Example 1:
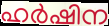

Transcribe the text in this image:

ഹർഷിന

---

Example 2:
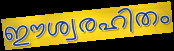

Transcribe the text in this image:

ഈശ്വരഹിതം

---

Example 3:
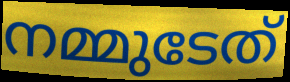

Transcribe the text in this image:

നമ്മുടേത്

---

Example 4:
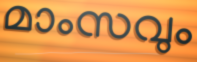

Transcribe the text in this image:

മാംസവും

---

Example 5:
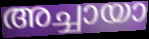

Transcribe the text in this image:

അച്ചായാ